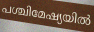
പശ്ചിമേഷ്യയിൽ